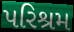
પરિશ્રમ